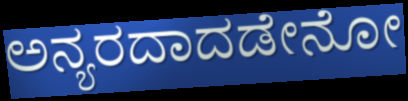
ಅನ್ಯರದಾದಡೇನೋ